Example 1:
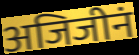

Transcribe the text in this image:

अजिजीनं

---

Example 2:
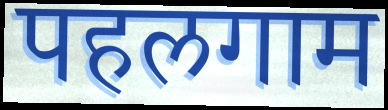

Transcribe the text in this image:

पहलगाम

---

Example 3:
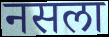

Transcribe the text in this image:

नसला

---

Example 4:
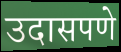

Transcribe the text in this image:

उदासपणे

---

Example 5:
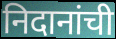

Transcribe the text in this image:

निदानांची